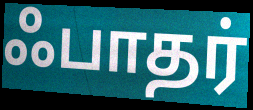
ஃபாதர்